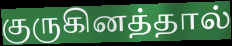
குருகினத்தால்